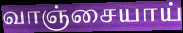
வாஞ்சையாய்